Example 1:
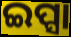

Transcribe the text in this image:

ଇପ୍ସା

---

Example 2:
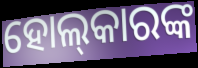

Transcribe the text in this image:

ହୋଲ୍‍କାରଙ୍କ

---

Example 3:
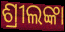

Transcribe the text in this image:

ଶ୍ରୀଲଙ୍କା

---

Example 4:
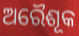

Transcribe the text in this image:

ଅରୈଶୂକ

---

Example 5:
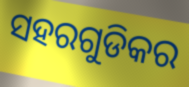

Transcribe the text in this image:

ସହରଗୁଡିକର